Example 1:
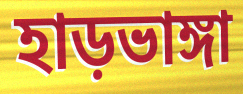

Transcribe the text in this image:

হাড়ভাঙ্গা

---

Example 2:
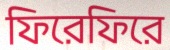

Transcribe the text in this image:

ফিরেফিরে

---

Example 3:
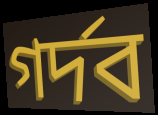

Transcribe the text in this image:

গর্দব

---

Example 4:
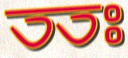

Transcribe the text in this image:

ততঃ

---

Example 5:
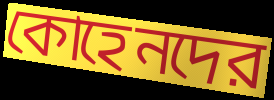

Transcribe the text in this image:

কোহেনদের